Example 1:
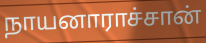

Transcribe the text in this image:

நாயனாராச்சான்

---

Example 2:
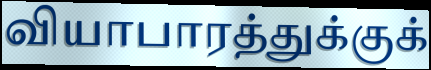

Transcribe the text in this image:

வியாபாரத்துக்குக்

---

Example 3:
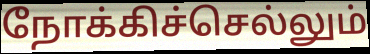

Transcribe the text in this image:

நோக்கிச்செல்லும்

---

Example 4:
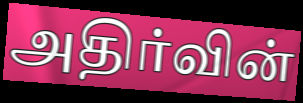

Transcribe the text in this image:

அதிர்வின்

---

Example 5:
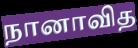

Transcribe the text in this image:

நானாவித